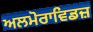
ਅਲਮੋਰਾਵਿਡਜ਼